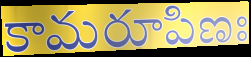
కామరూపిణః